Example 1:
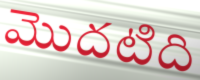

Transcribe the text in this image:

మొదటిది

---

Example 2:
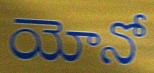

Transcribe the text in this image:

యోనో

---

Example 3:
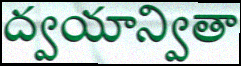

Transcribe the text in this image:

ద్వయాన్వితా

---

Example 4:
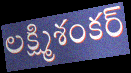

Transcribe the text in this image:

లక్ష్మిశంకర్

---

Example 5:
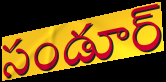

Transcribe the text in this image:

సండూర్